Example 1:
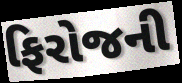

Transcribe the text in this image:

ફિરોજની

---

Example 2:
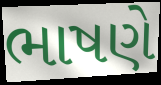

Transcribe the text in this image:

ભાષણે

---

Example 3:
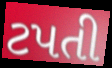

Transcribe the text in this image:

ટપતી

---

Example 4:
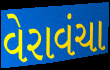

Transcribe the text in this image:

વેરાવંચા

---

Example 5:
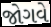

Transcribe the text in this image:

જોગવે